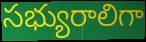
సభ్యురాలిగా